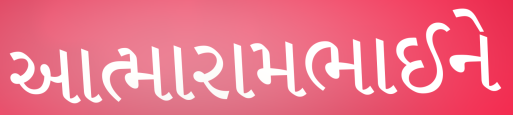
આત્મારામભાઈને